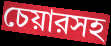
চেয়ারসহ